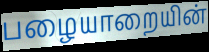
பழையாறையின்